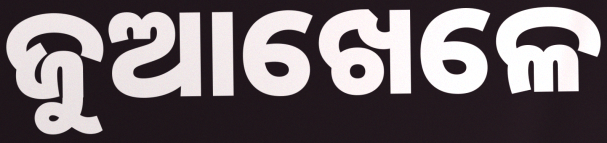
ଜୁଆଖେଳେ